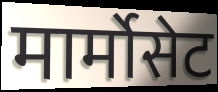
मार्मोसेट